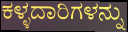
ಕಳ್ಳದಾರಿಗಳನ್ನು